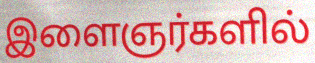
இளைஞர்களில்